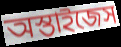
অস্তাইজেস